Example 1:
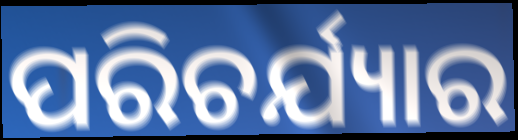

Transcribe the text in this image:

ପରିଚର୍ଯ୍ୟାର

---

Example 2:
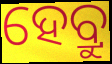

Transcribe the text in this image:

ହେବ୍ରୁ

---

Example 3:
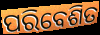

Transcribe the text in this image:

ପରିବେଶିତ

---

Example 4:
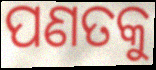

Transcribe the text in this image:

ପଣତକୁ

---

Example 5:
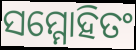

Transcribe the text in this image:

ସମ୍ମୋହିତଂ